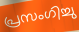
പ്രസംഗിച്ചു